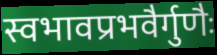
स्वभावप्रभवैर्गुणैः